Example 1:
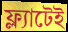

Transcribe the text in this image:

ফ্ল্যাটেই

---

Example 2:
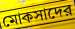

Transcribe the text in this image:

মোকসাদের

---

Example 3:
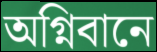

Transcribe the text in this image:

অগ্নিবানে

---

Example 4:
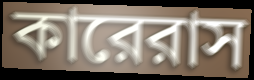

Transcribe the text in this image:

কারেরাস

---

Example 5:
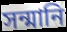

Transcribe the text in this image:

সন্মানি